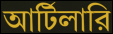
আর্টিলারি